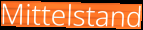
Mittelstand